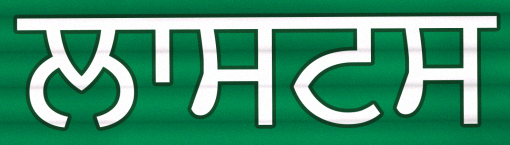
ਲਾਸਟਸ